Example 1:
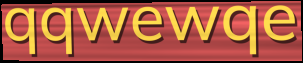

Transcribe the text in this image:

qqwewqe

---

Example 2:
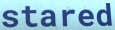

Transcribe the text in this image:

stared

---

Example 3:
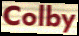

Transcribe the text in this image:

Colby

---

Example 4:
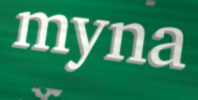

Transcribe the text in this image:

myna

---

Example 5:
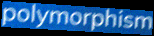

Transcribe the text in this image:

polymorphism